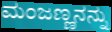
ಮಂಜಣ್ಣನನ್ನು